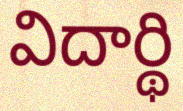
విదార్థి